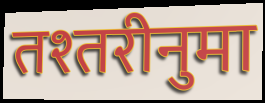
तश्तरीनुमा